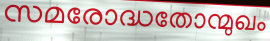
സമരോദ്ധതോന്മുഖം